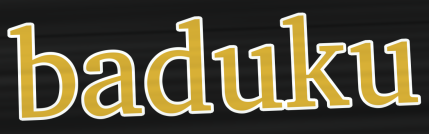
baduku